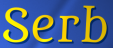
Serb